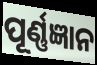
ପୂର୍ଣ୍ଣଜ୍ଞାନ